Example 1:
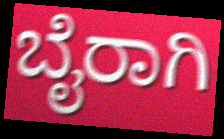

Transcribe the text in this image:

ಬೈರಾಗಿ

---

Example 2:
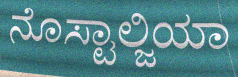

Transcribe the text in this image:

ನೊಸ್ಟಾಲ್ಜಿಯಾ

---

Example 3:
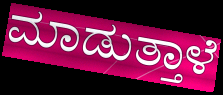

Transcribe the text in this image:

ಮಾಡುತ್ತಾಳೆ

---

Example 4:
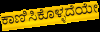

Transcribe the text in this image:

ಕಾಣಿಸಿಕೊಳ್ಳದೆಯೇ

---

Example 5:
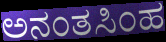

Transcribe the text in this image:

ಅನಂತಸಿಂಹ